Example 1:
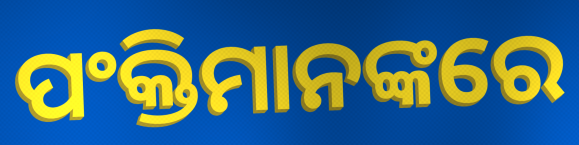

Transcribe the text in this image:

ପଂକ୍ତିମାନଙ୍କରେ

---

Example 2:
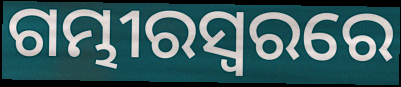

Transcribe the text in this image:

ଗମ୍ଭୀରସ୍ୱରରେ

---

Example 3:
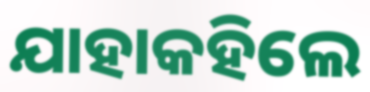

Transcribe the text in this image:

ଯାହାକହିଲେ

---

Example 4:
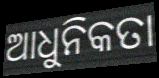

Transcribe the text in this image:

ଆଧୁନିକତା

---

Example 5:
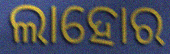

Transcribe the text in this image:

ଲାହୋର